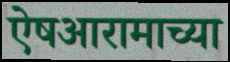
ऐषआरामाच्या